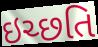
ઇચ્છતિ